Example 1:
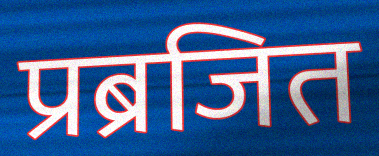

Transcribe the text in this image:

प्रब्रजित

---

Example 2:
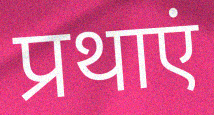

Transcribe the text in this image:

प्रथाएं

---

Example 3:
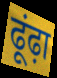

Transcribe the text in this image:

ढूंढ़ा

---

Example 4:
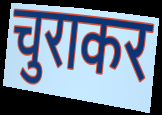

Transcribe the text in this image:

चुराकर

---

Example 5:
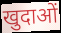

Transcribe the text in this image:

खुदाओं